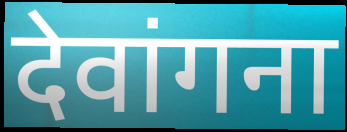
देवांगना